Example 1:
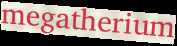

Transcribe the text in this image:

megatherium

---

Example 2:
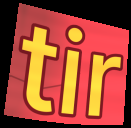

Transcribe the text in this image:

tir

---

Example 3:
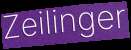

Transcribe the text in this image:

Zeilinger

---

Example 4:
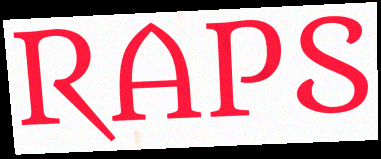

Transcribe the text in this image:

RAPS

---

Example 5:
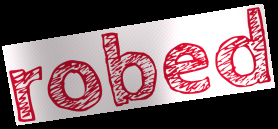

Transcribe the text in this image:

robed